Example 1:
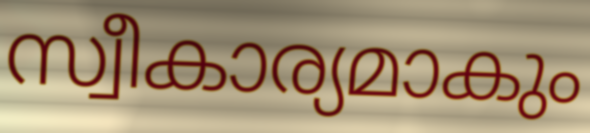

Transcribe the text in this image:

സ്വീകാര്യമാകും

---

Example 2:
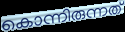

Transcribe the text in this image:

കൊന്നിരുന്നത്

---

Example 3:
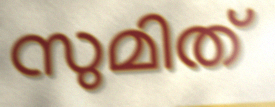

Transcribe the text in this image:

സുമിത്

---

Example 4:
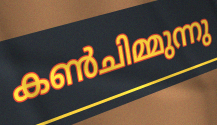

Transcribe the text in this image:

കൺചിമ്മുന്നു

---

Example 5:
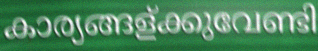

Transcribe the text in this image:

കാര്യങ്ങള്ക്കുവേണ്ടി